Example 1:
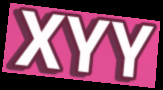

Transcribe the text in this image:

XYY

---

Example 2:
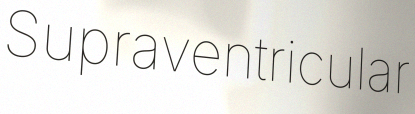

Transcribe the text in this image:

Supraventricular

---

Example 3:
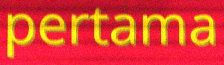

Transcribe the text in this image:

pertama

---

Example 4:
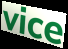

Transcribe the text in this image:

vice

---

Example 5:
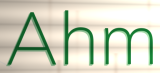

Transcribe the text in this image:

Ahm